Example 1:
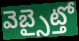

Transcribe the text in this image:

వెబ్సైట్తో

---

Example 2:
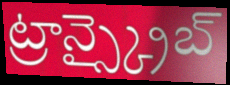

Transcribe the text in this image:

ట్రాన్స్క్రైబ్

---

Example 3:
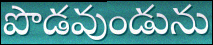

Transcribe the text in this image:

పొడవుండును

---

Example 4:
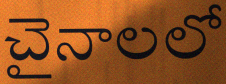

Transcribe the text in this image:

చైనాలలో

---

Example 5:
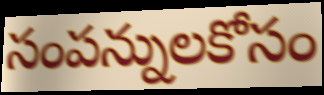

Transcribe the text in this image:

సంపన్నులకోసం